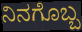
ನಿನಗೊಬ್ಬ